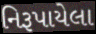
નિરૂપાયેલા